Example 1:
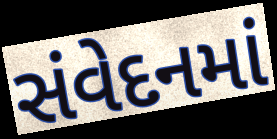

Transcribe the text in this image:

સંવેદનમાં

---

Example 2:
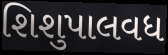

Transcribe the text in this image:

શિશુપાલવધ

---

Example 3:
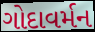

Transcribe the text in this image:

ગોદાવર્મન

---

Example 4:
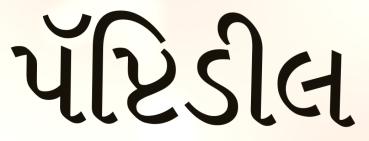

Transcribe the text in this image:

પૅપ્ટિડીલ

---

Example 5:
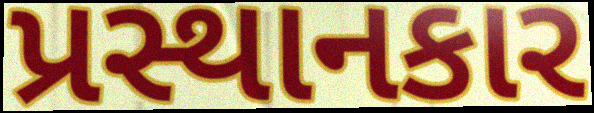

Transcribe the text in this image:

પ્રસ્થાનકાર